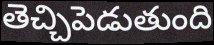
తెచ్చిపెడుతుంది